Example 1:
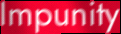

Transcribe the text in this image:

Impunity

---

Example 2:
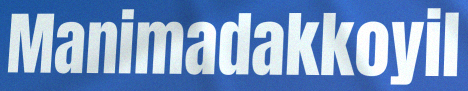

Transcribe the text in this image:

Manimadakkoyil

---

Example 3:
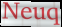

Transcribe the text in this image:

Neuq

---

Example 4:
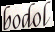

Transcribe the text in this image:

bodol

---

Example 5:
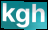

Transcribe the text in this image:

kgh